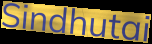
Sindhutai